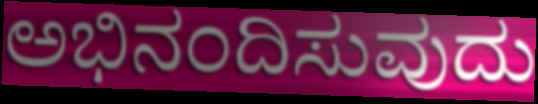
ಅಭಿನಂದಿಸುವುದು